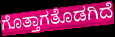
ಗೊತ್ತಾಗತೊಡಗಿದೆ